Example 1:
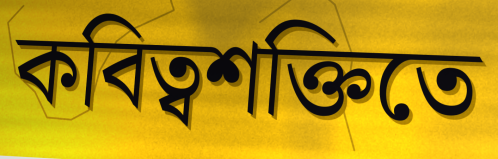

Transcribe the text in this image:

কবিত্বশক্তিতে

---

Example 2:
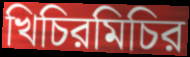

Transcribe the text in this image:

খিচিরমিচির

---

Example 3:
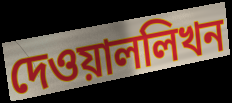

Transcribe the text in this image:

দেওয়াললিখন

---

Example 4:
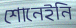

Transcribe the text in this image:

শোনেইনি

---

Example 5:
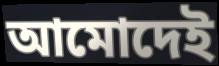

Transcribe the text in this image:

আমোদেই